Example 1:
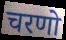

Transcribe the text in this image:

चरणो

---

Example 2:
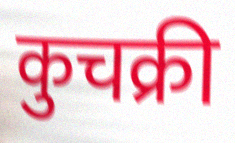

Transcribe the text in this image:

कुचक्री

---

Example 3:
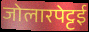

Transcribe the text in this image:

जोलारपेट्टई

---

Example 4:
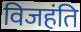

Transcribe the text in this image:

विजहंति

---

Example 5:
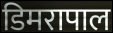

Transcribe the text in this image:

डिमरापाल